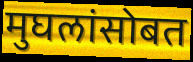
मुघलांसोबत